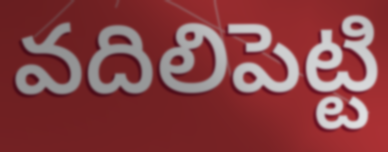
వదిలిపెట్టి